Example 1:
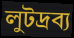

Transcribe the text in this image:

লুটদ্রব্য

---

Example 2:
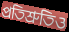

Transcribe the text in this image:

প্রতিশ্রুতিও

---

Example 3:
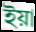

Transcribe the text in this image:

ইয়া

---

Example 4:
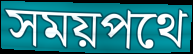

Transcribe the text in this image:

সময়পথে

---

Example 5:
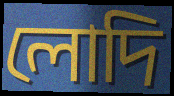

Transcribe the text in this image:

লোদি